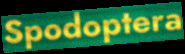
Spodoptera